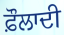
ਫ਼ੌਲਾਦੀ